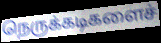
நெருக்கடிகளைச்